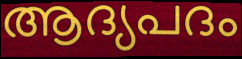
ആദ്യപദം